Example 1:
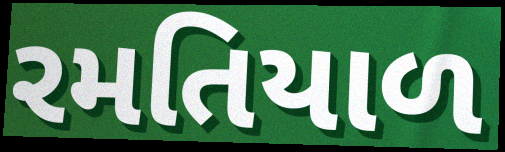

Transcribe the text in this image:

રમતિયાળ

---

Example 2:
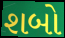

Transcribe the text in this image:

શબો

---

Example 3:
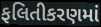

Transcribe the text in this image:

ફલિતીકરણમાં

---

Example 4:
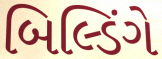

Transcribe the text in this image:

બિલ્ડિંગે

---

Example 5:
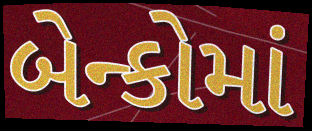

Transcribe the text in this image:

બેન્કોમાં